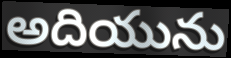
అదియును